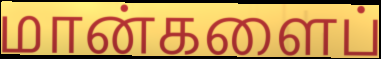
மான்களைப்